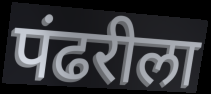
पंढरीला